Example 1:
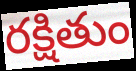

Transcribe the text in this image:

రక్షితుం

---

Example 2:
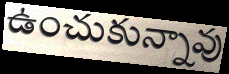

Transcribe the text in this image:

ఉంచుకున్నావు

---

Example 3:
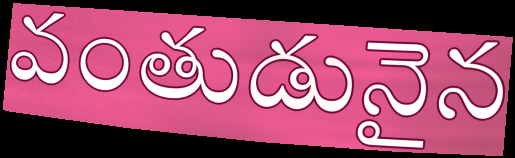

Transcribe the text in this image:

వంతుడునైన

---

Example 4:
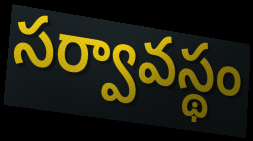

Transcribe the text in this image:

సర్వావస్థం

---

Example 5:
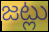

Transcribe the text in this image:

జట్లు